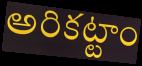
అరికట్టాం